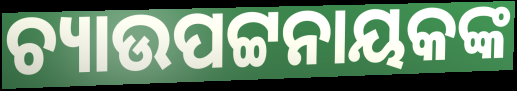
ଚ୍ୟାଉପଟ୍ଟନାୟକଙ୍କ